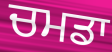
ਚਮਡਾ